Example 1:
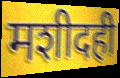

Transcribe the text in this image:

मशीदही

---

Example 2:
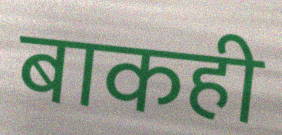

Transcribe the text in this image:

बाकही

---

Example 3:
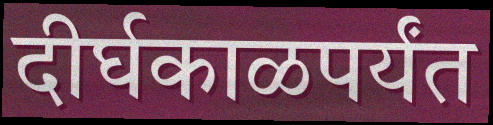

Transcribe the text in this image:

दीर्घकाळपर्यंत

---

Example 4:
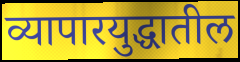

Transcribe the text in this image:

व्यापारयुद्धातील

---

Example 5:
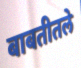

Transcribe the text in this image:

बाबतीतले